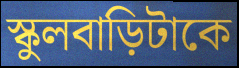
স্কুলবাড়িটাকে